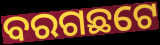
ବରଗଛଟେ